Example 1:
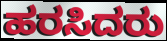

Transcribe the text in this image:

ಹರಸಿದರು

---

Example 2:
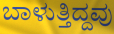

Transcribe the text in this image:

ಬಾಳುತ್ತಿದ್ದವು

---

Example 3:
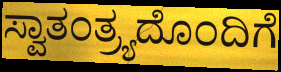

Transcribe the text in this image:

ಸ್ವಾತಂತ್ರ್ಯದೊಂದಿಗೆ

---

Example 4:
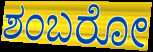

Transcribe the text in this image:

ಶಂಬರೋ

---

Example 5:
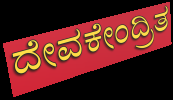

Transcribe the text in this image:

ದೇವಕೇಂದ್ರಿತ